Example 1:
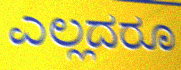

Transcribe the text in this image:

ಎಲ್ಲದರೂ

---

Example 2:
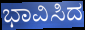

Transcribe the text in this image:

ಭಾವಿಸಿದ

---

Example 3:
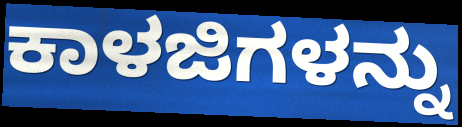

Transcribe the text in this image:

ಕಾಳಜಿಗಳನ್ನು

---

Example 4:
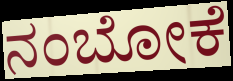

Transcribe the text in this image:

ನಂಬೋಕೆ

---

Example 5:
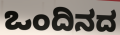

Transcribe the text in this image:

ಒಂದಿನದ